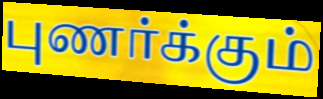
புணர்க்கும்